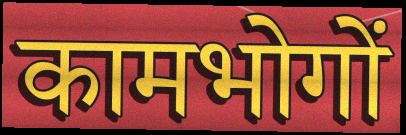
कामभोगों